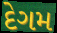
દેગમ